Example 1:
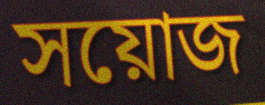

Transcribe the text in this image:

সয়োজ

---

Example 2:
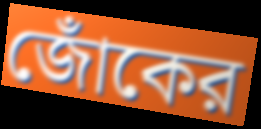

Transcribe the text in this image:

জোঁকের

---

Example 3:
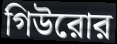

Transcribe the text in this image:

গিউরোর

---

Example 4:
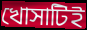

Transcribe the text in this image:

খোসাটিই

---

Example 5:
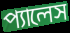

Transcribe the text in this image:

প্যালেস